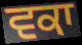
ਵਕਾ